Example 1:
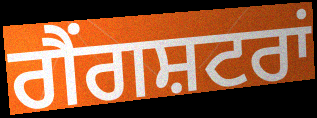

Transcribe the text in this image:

ਗੈਂਗਸ਼ਟਰਾਂ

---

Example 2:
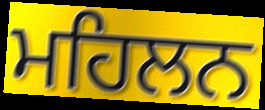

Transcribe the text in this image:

ਮਹਿਲਨ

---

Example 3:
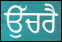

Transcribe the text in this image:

ਉੱਚਰੈ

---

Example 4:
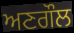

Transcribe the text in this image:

ਅਣਗੌਲ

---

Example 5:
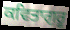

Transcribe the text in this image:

ਕਵਿਤਾਗੁਰੂ